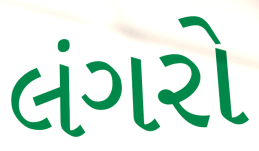
લંગરો